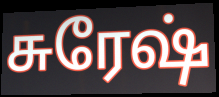
சுரேஷ்